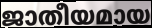
ജാതീയമായ